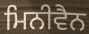
ਮਿਨੀਵੈਨ